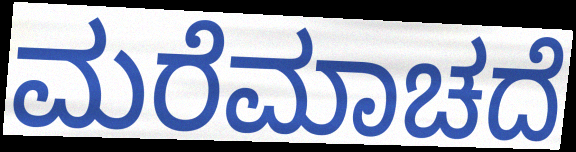
ಮರೆಮಾಚದೆ